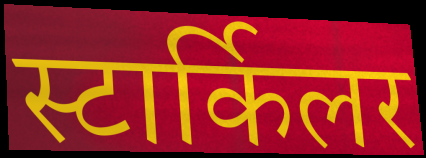
स्टार्किलर